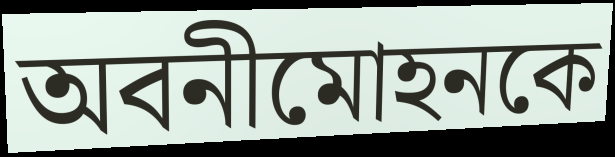
অবনীমোহনকে